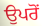
ਉਪਰੋਂ